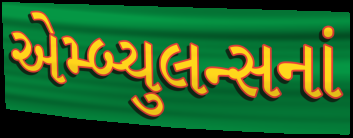
એમ્બ્યુલન્સનાં